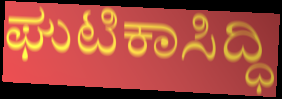
ಘುಟಿಕಾಸಿದ್ಧಿ